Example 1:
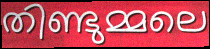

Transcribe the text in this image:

തിണ്ടുമ്മലെ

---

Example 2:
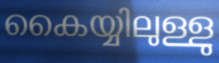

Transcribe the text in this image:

കൈയ്യിലുള്ളു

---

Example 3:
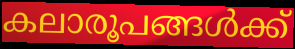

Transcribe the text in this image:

കലാരൂപങ്ങൾക്ക്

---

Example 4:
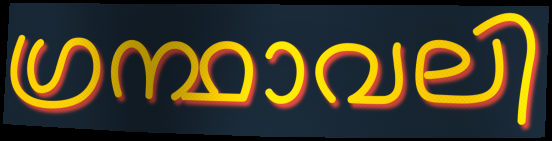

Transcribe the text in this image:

ഗ്രന്ഥാവലി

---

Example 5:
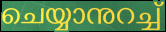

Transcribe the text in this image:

ചെയ്യാനുറച്ച്